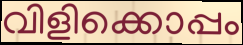
വിളിക്കൊപ്പം